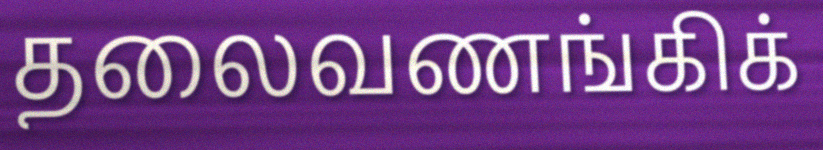
தலைவணங்கிக்